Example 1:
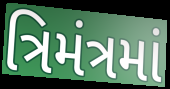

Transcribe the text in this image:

ત્રિમંત્રમાં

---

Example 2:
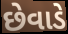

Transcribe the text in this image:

છેવાડે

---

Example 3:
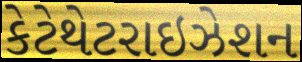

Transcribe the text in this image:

કેટેથેટરાઇઝેશન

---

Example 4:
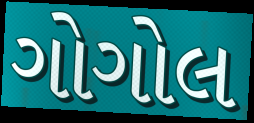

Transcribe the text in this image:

ગોગોલ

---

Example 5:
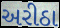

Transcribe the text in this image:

અરીઠા